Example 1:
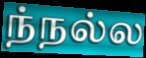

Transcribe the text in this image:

ந்நல்ல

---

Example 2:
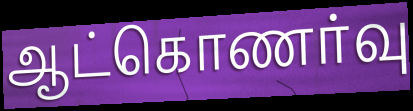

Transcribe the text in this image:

ஆட்கொணர்வு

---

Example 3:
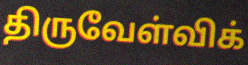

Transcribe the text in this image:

திருவேள்விக்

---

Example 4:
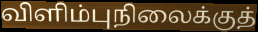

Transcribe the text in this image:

விளிம்புநிலைக்குத்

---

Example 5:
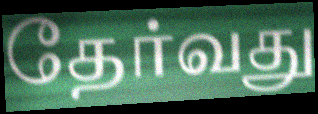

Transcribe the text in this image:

தேர்வது